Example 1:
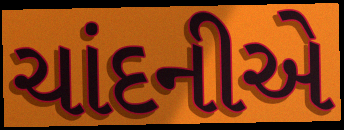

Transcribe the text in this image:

ચાંદનીએ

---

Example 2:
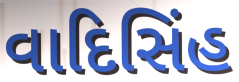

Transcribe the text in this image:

વાદિસિંહ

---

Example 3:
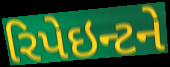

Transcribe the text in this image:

રિપેઇન્ટને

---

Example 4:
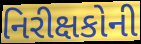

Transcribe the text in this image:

નિરીક્ષકોની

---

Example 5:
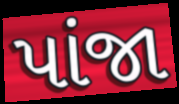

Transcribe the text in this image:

પાંજા